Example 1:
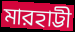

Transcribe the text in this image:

মারহাট্টী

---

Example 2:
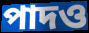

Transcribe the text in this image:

পাদও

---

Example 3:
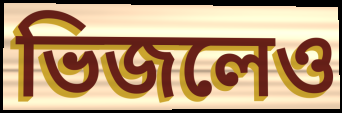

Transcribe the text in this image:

ভিজলেও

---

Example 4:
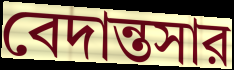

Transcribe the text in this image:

বেদান্তসার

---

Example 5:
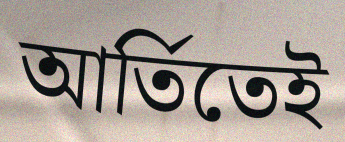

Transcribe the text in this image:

আর্তিতেই